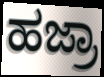
ಹಜ್ರಾ